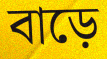
বাড়ে